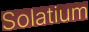
Solatium